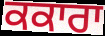
ਕਕਾਰਾ